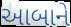
આબાને